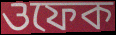
ওফেক